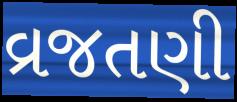
વ્રજતણી